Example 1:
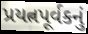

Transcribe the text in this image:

પ્રયત્નપૂર્વકનું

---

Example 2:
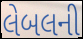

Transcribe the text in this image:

લેબલની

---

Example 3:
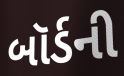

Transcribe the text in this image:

બૉર્ડની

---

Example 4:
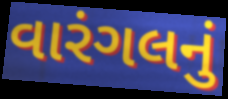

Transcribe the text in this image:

વારંગલનું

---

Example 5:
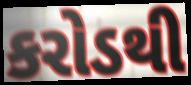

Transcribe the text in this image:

કરોડથી